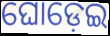
ଘୋଡ଼େଇ